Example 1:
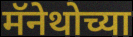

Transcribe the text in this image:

मॅनेथोच्या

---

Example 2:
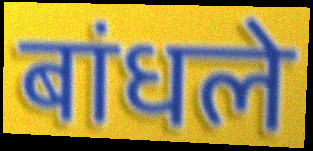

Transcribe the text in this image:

बांधले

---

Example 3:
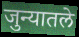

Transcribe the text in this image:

जुन्यातले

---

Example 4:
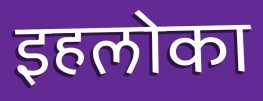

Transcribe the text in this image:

इहलोका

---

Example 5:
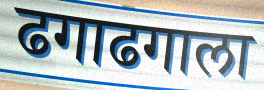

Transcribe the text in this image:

ढगाढगाला